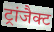
ट्रांजैक्ट